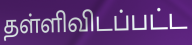
தள்ளிவிடப்பட்ட